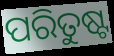
ପରିତୁଷ୍ଟ